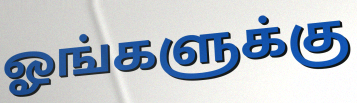
ஓங்களுக்கு